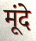
मूंदे